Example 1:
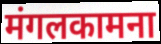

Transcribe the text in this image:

मंगलकामना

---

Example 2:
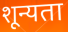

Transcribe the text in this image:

शून्‍यता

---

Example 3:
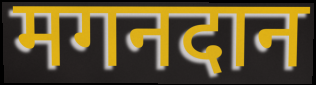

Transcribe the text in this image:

मगनदान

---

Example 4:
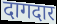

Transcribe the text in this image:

दागदार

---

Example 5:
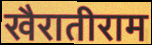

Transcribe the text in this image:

खैरातीराम